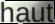
haut